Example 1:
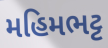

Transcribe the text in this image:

મહિમભટ્ટ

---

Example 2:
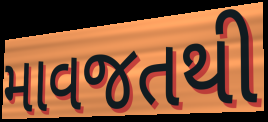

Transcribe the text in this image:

માવજતથી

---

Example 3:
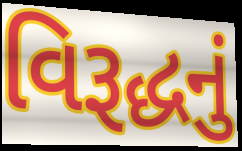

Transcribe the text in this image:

વિરૂદ્ધનું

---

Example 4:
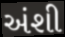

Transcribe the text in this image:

અંશી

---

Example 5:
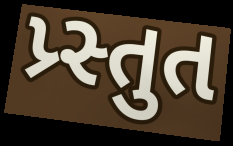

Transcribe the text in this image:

પ્ર્સ્તુત